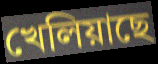
খেলিয়াছে